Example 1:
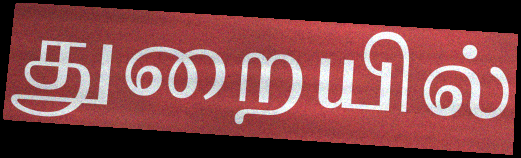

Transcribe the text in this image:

துறையில்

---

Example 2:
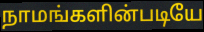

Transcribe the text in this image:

நாமங்களின்படியே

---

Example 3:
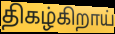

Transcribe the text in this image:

திகழ்கிறாய்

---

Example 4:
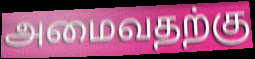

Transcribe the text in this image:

அமைவதற்கு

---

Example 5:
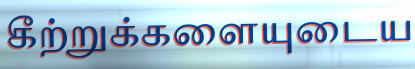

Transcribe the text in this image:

கீற்றுக்களையுடைய